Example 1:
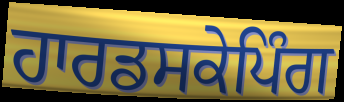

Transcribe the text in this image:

ਹਾਰਡਸਕੇਪਿੰਗ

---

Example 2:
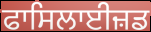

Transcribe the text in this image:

ਫਾਸਿਲਾਈਜ਼ਡ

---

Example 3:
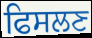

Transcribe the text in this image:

ਫਿਸਲਣ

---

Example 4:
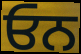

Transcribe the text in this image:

ਓਨ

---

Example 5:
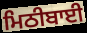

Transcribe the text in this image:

ਮਿਠੀਬਾਈ